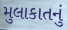
મુલાકાતનું